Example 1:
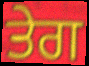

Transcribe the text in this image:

ਤੇਗ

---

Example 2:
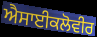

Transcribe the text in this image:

ਐਸਾਈਕਲੋਵੀਰ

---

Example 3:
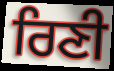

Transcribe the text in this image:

ਰਿਣੀ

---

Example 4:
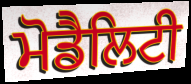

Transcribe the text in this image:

ਮੋਡੈਲਿਟੀ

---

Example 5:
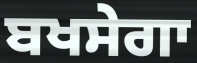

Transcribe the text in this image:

ਬਖਸੇਗਾ